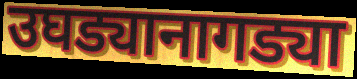
उघड्यानागड्या